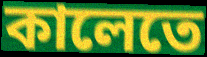
কালেতে